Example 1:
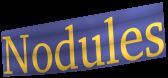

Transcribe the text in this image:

Nodules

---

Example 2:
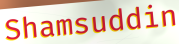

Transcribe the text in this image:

Shamsuddin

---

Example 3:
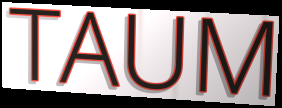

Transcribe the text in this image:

TAUM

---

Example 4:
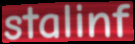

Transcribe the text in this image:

stalinf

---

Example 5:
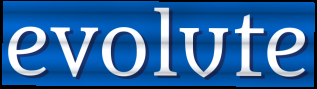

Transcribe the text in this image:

evolute